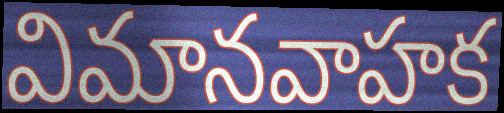
విమానవాహక